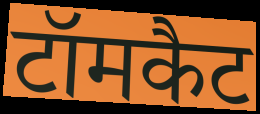
टॉमकैट